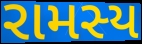
રામસ્ય